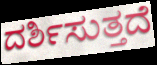
ದರ್ಶಿಸುತ್ತದೆ